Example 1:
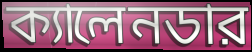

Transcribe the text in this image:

ক্যালেনডার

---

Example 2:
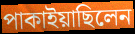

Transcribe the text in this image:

পাকাইয়াছিলেন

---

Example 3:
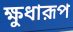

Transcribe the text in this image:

ক্ষুধারূপ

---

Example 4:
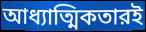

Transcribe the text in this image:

আধ্যাত্মিকতারই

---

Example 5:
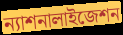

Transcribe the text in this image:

ন্যাশনালাইজেশন